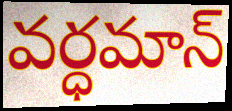
వర్ధమాన్